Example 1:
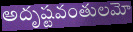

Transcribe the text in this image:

అదృష్టవంతులమో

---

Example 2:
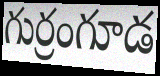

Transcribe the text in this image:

గుర్రంగూడ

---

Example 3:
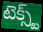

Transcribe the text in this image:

టెక్స్ట్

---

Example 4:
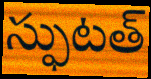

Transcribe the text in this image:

స్ఫుటత్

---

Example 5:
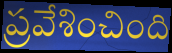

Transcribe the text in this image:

ప్రవేశించింది